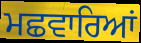
ਮਛਵਾਰਿਆਂ